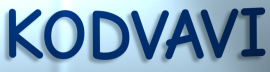
KODVAVI